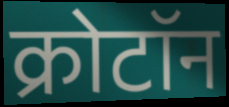
क्रोटॉन